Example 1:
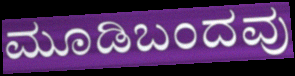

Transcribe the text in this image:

ಮೂಡಿಬಂದವು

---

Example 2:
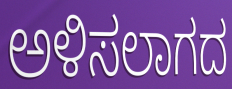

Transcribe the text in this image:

ಅಳಿಸಲಾಗದ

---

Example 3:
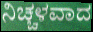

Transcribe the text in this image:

ನಿಚ್ಚಳವಾದ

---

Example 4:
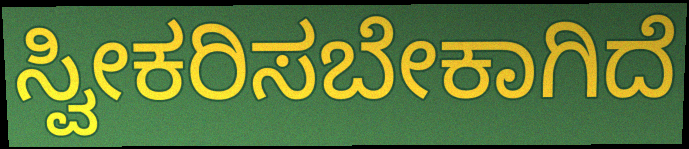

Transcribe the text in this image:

ಸ್ವೀಕರಿಸಬೇಕಾಗಿದೆ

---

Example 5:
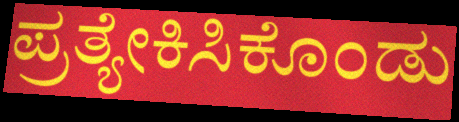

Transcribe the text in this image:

ಪ್ರತ್ಯೇಕಿಸಿಕೊಂಡು